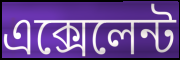
এক্সেলেন্ট